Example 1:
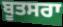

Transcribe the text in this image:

ਬੂਤਸਰਾ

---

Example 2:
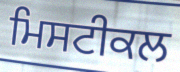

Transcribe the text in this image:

ਮਿਸਟੀਕਲ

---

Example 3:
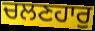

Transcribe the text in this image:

ਚਲਣਹਾਰੁ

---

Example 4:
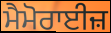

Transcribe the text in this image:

ਮੈਮੋਰਾਈਜ਼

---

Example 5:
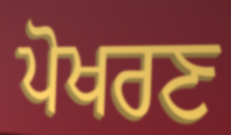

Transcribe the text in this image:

ਪੋਖਰਣ